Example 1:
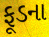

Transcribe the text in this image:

ફૂડના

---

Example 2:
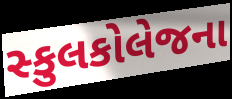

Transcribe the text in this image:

સ્કુલકોલેજના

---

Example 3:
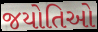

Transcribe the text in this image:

જયોતિઓ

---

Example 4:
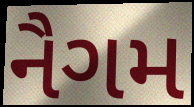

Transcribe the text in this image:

નૈગમ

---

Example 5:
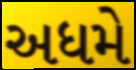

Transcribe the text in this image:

અધમે